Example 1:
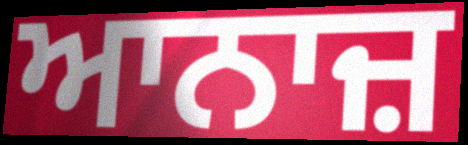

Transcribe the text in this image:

ਆਨਾਜ਼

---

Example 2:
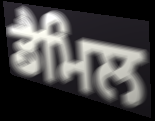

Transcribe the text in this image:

ਡੈਮਿਲ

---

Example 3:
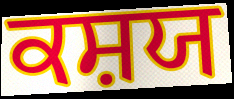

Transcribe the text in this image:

ਕਸ਼ਯ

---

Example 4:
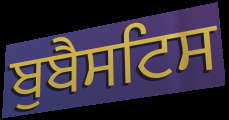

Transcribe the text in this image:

ਬੁਬੈਸਟਿਸ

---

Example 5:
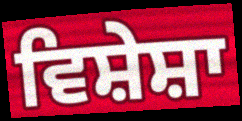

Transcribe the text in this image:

ਵਿਸ਼ੇਸ਼ਾ